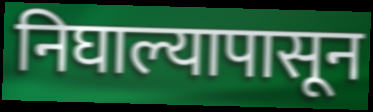
निघाल्यापासून